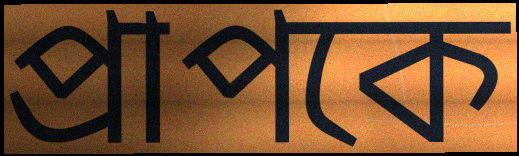
প্রাপকে